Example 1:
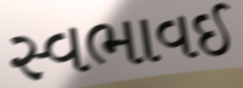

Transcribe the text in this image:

સ્વભાવઈ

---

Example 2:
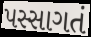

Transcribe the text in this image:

પસ્સાગતં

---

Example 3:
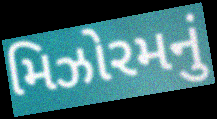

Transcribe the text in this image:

મિઝોરમનું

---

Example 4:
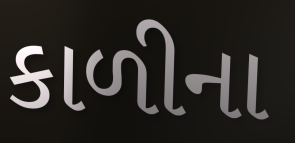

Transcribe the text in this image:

કાળીના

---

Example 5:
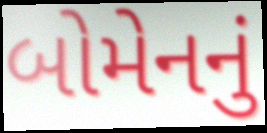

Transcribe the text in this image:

બોમેનનું